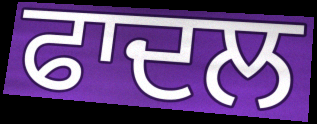
ਫਾਦਲ